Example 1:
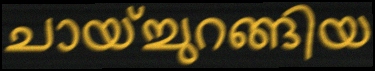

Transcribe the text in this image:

ചായ്ച്ചുറങ്ങിയ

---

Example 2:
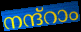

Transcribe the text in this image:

നന്ദ്റാം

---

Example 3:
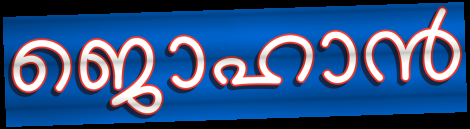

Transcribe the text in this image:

ജൊഹാൻ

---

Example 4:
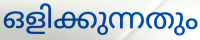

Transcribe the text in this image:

ഒളിക്കുന്നതും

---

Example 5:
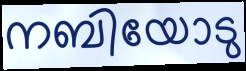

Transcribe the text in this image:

നബിയോടു